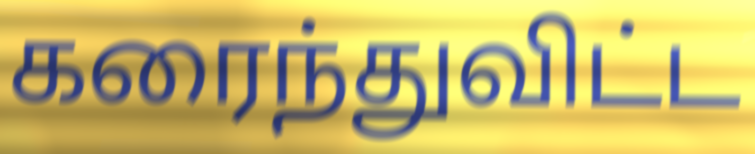
கரைந்துவிட்ட